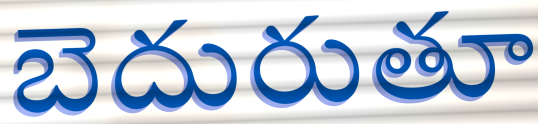
బెదురుతూ